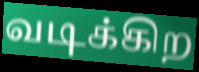
வடிக்கிற